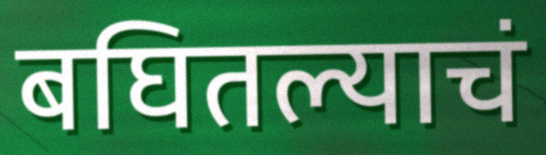
बघितल्याचं